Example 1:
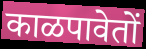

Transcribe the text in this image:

काळपावेतों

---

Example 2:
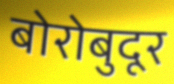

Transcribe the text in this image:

बोरोबुदूर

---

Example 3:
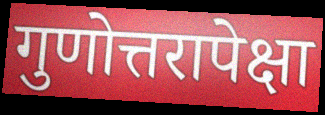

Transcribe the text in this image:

गुणोत्तरापेक्षा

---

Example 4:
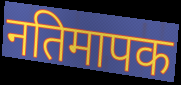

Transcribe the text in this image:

नतिमापक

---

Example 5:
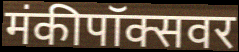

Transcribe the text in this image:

मंकीपॉक्सवर